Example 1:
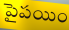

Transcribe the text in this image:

పైపయిం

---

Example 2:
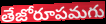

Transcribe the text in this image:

తేజోరూపమగు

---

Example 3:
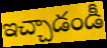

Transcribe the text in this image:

ఇచ్చాడండీ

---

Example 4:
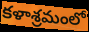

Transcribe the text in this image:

కళాశ్రమంలో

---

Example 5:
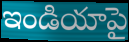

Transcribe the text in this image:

ఇండియాపై